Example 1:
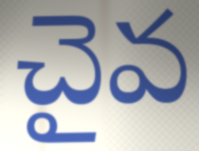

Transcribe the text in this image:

చైవ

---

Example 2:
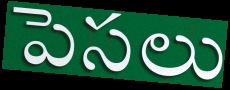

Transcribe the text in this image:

పెసలు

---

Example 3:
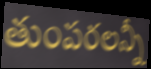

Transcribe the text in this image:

తుంపరలన్నీ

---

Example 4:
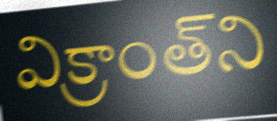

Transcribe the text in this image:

విక్రాంత్‌ని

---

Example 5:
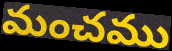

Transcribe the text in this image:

మంచము